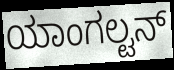
ಯಾಂಗಲ್ಟನ್